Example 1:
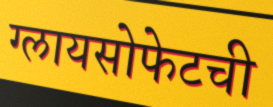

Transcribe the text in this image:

ग्लायसोफेटची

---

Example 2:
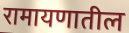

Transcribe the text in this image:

रामायणातील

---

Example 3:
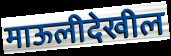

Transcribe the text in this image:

माऊलीदेखील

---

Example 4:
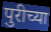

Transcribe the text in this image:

पुरीच्या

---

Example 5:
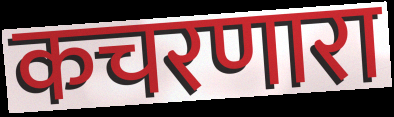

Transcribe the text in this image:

कचरणारा